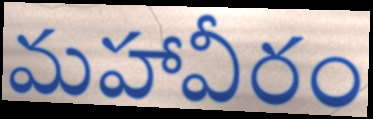
మహావీరం